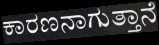
ಕಾರಣನಾಗುತ್ತಾನೆ